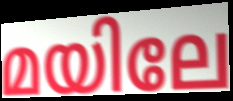
മയിലേ